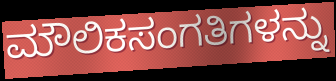
ಮೌಲಿಕಸಂಗತಿಗಳನ್ನು